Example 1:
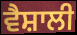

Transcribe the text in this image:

ਵੈਸ਼ਾਲੀ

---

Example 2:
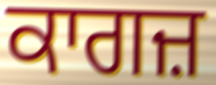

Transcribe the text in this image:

ਕਾਗਜ਼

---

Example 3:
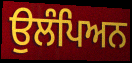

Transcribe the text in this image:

ਉਲੰਪਿਅਨ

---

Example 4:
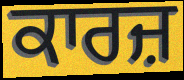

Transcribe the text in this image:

ਕਾਰਜ਼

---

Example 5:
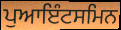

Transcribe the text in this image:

ਪੁਆਇੰਟਸਮਿਨ